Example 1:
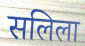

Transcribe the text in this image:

सलिला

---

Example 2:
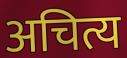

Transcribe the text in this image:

अचित्य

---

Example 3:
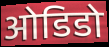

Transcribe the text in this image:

ओडिडो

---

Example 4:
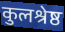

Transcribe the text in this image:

कुलश्रेष्ठ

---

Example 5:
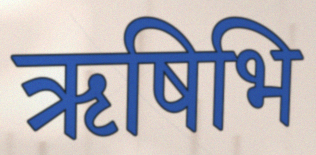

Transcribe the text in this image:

ऋषिभि